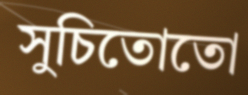
সুচিতোতো